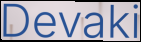
Devaki